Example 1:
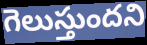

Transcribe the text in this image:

గెలుస్తుందని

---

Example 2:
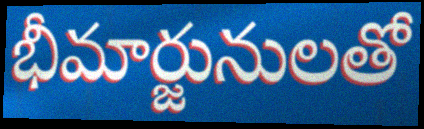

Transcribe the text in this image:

భీమార్జునులతో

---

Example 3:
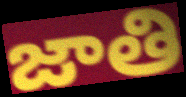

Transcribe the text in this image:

జాతి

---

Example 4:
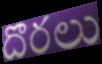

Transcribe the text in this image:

దొరలు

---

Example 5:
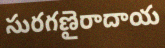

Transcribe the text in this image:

సురగణైరాదాయ